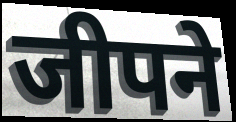
जीपने